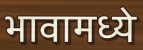
भावामध्ये